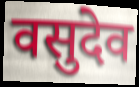
वसुदेव